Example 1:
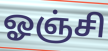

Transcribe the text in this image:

ஓஞ்சி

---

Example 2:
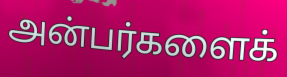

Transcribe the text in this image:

அன்பர்களைக்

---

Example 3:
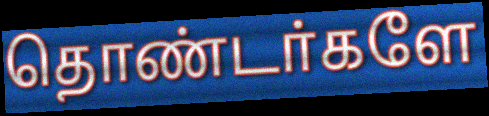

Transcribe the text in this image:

தொண்டர்களே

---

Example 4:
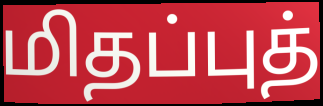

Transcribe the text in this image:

மிதப்புத்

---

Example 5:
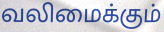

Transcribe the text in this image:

வலிமைக்கும்